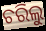
ଚରିଲୁ